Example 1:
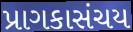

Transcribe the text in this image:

પ્રાગકાસંચય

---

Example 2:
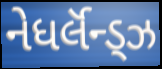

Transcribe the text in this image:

નેધર્લૅન્ડ્ઝ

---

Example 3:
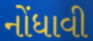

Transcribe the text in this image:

નોંધાવી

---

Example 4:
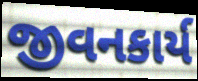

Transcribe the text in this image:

જીવનકાર્ય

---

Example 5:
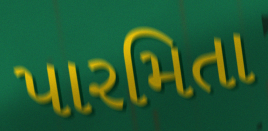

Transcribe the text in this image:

પારમિતા